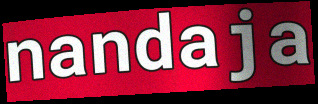
nandaja